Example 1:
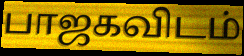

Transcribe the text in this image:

பாஜகவிடம்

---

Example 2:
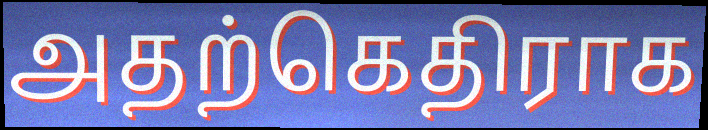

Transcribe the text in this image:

அதற்கெதிராக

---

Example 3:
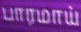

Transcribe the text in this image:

பாரமாய்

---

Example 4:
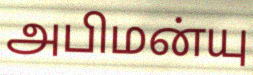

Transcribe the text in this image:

அபிமன்யு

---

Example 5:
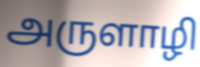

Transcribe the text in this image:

அருளாழி